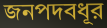
জনপদবধূর